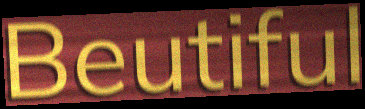
Beutiful